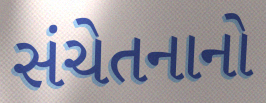
સંચેતનાનો